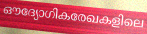
ഔദ്യോഗികരേഖകളിലെ